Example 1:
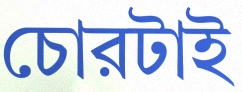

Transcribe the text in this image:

চোরটাই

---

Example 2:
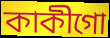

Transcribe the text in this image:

কাকীগো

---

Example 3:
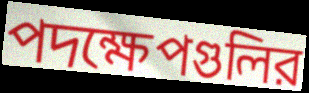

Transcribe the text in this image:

পদক্ষেপগুলির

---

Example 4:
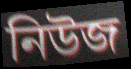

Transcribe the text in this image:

নিউজ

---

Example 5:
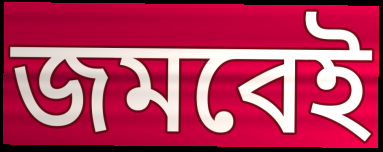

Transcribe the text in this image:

জমবেই